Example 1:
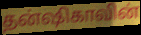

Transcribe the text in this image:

தன்ஷிகாவின்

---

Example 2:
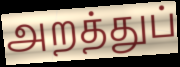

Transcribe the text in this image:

அறத்துப்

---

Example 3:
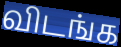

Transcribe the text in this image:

விடங்க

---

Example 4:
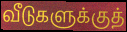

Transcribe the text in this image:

வீடுகளுக்குத்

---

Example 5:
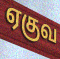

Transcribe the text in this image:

ஏகுவ